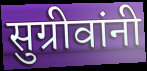
सुग्रीवांनी